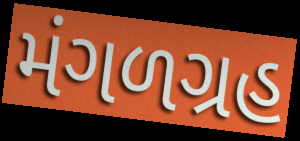
મંગળગ્રહ